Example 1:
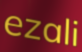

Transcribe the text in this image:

ezali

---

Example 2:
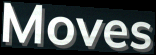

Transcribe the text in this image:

Moves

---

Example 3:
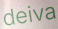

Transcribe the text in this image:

deiva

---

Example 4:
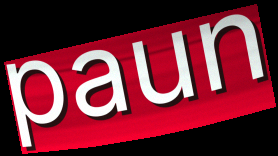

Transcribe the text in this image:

paun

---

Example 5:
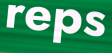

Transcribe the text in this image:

reps